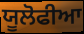
ਯੂਲੋਫੀਆ